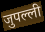
जुपल्ली